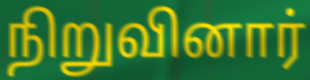
நிறுவினார்